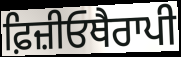
ਫ਼ਿਜ਼ੀਓਥੈਰਾਪੀ